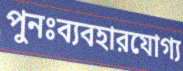
পুনঃব্যবহারযোগ্য